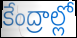
కేంద్రాల్లో